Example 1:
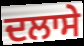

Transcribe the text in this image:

ਦਲਾਸੇ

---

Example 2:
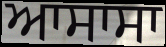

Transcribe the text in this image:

ਆਸਾਸਾ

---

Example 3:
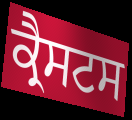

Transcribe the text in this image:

ਕ੍ਰੈਸਟਸ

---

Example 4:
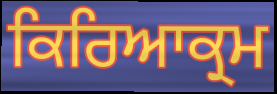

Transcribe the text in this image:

ਕਿਰਿਆਕ੍ਰਮ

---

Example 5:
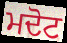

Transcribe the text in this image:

ਮਦੋਟ